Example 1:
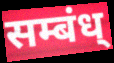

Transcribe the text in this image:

सम्बंध्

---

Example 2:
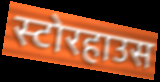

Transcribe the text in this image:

स्टोरहाउस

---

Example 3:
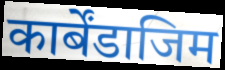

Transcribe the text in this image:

कार्बेंडाजिम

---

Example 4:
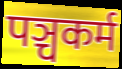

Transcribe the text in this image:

पञ्चकर्म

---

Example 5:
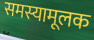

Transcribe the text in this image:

समस्यामूलक